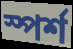
স্পৰ্শ